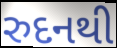
રુદનથી